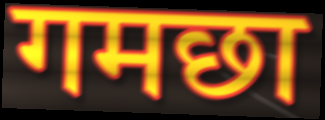
गमछा